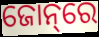
ଜୋନ୍‌ରେ